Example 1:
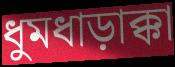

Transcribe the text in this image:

ধুমধাড়াক্কা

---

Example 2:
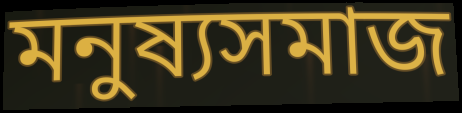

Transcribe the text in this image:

মনুষ্যসমাজ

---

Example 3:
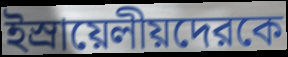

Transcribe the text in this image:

ইস্রায়েলীয়দেরকে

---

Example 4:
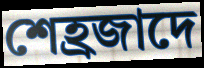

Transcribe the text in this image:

শেহ্রজাদে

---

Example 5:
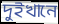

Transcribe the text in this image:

দুইখানে